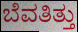
ಬೆವತಿತ್ತು